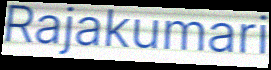
Rajakumari